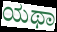
ಯಥಾ